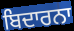
ਬਿਦਾਰਨਾ